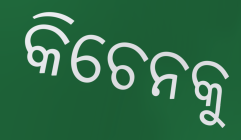
କିଚେନକୁ